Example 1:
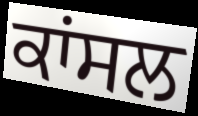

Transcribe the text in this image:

ਕਾਂਸਲ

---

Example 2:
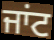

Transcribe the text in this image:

ਜਾਂਟ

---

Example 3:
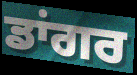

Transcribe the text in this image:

ਡਾਂਗਰ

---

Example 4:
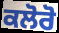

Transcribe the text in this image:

ਕਲੋਰੋ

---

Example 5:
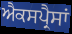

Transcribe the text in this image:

ਐਕਸਪ੍ਰੈਸਾਂ